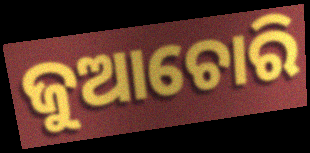
ଜୁଆଚୋରି